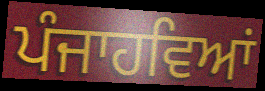
ਪੰਜਾਹਵਿਆਂ